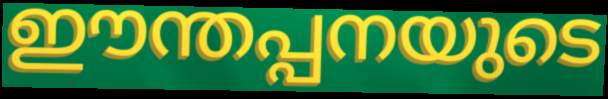
ഈന്തപ്പനയുടെ